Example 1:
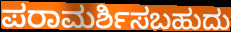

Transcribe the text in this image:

ಪರಾಮರ್ಶಿಸಬಹುದು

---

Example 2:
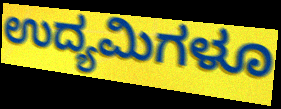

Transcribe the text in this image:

ಉದ್ಯಮಿಗಳೂ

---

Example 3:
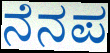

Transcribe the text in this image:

ನೆನಪ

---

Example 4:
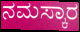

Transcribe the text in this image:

ನಮಸ್ಕಾರ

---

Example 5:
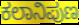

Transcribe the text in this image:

ಕಲಾನಿಪುಣ